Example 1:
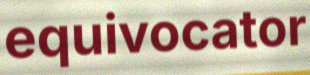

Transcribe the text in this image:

equivocator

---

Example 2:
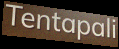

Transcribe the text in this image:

Tentapali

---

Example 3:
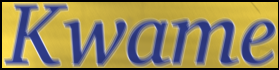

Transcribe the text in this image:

Kwame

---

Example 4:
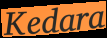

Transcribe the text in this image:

Kedara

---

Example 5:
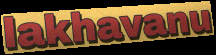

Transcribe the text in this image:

lakhavanu